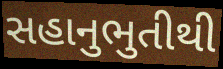
સહાનુભુતીથી